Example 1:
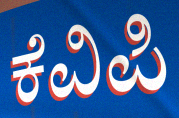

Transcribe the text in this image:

ಕೆವಿಪಿ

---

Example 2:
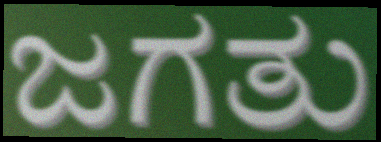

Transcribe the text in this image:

ಜಗತು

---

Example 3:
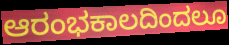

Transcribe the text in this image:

ಆರಂಭಕಾಲದಿಂದಲೂ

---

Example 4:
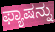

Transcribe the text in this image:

ಫ್ಯಾಷನ್ನು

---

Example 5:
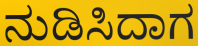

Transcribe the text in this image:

ನುಡಿಸಿದಾಗ